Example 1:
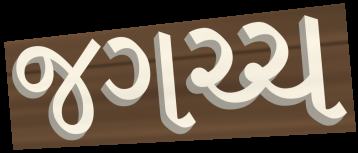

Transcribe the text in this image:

જગચ્ચ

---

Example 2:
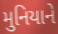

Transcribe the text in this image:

મુનિયાને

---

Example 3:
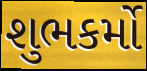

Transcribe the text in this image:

શુભકર્મો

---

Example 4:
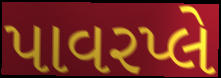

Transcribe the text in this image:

પાવરપ્લે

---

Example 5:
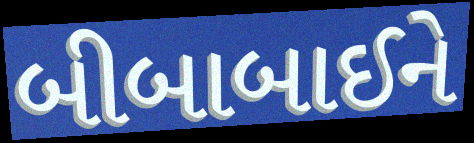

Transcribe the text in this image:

બીબાબાઈને